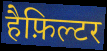
हैफ़िल्टर